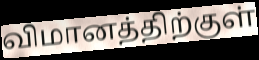
விமானத்திற்குள்